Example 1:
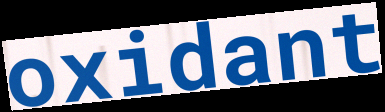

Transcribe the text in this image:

oxidant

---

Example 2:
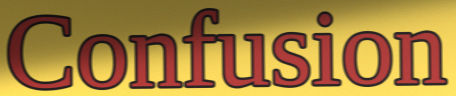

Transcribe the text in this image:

Confusion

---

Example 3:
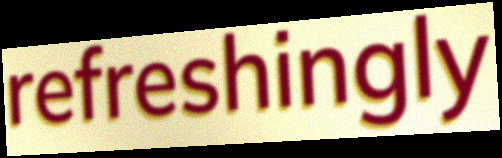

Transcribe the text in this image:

refreshingly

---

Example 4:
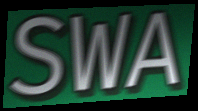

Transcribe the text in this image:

SWA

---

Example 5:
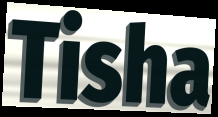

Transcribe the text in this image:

Tisha